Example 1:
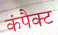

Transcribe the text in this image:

कंपैक्ट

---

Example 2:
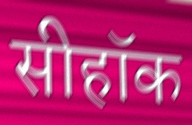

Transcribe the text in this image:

सीहॉक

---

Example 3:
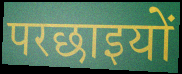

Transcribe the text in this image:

परछाइयों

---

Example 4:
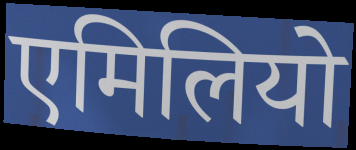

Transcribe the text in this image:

एमिलियो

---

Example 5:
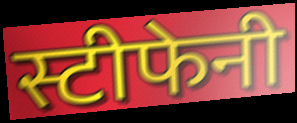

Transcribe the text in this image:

स्टीफेनी